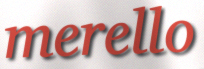
merello